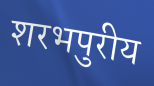
शरभपुरीय